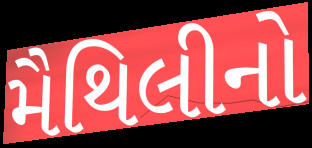
મૈથિલીનો